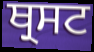
ਥ੍ਰਸਟ